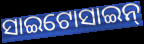
ସାଇଟୋସାଇନ୍